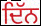
ਦਿੱਨ